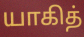
யாகித்